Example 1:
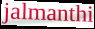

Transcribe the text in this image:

jalmanthi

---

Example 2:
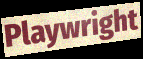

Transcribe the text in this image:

Playwright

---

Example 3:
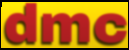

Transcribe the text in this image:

dmc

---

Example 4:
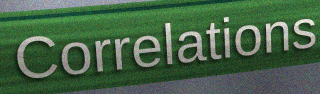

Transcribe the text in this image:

Correlations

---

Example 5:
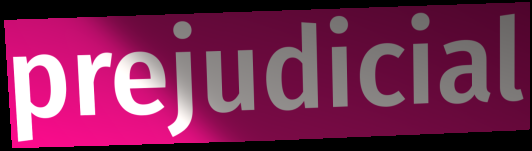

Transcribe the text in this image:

prejudicial